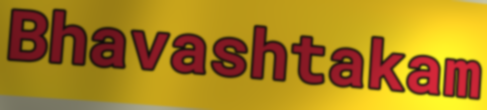
Bhavashtakam